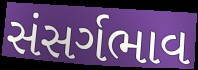
સંસર્ગભાવ